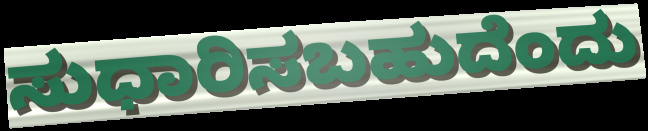
ಸುಧಾರಿಸಬಹುದೆಂದು